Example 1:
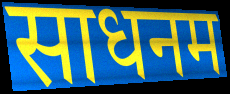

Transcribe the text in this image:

साधनम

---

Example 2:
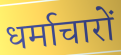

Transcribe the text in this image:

धर्माचारों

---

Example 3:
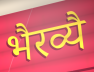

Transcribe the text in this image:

भैरव्यै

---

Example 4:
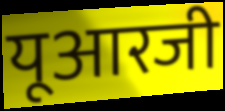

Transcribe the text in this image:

यूआरजी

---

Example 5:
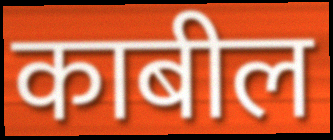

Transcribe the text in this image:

काबील